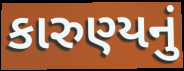
કારુણ્યનું